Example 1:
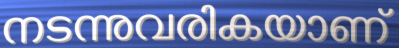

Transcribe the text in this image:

നടന്നുവരികയാണ്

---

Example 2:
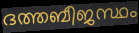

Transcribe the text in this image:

ദത്തബീജസ്ഥം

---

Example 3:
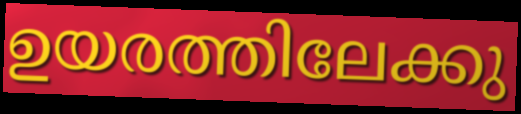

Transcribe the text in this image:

ഉയരത്തിലേക്കു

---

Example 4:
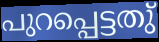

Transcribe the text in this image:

പുറപ്പെട്ടതു്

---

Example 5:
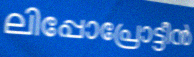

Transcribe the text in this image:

ലിപ്പോപ്രോട്ടീൻ